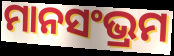
ମାନସଂଭ୍ରମ